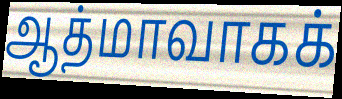
ஆத்மாவாகக்